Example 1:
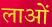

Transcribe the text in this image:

लाओं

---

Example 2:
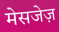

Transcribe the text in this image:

मेसजेज़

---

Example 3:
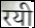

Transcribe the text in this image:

रयी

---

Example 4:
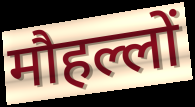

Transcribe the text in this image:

मौहल्लों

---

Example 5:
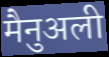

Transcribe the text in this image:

मैनुअली